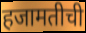
हजामतीची